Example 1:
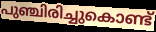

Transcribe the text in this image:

പുഞ്ചിരിച്ചുകൊണ്ട്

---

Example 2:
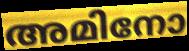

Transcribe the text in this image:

അമിനോ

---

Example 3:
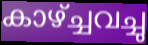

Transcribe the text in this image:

കാഴ്ച്ചവച്ചു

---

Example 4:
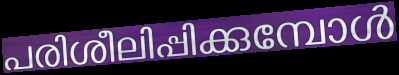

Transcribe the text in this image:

പരിശീലിപ്പിക്കുമ്പോൾ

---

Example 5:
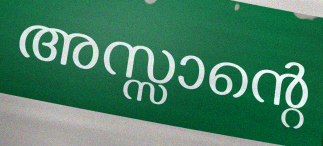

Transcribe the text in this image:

അസ്സാന്റെ